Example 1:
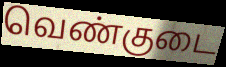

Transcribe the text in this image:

வெண்குடை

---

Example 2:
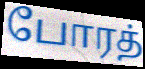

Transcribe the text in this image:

போரத்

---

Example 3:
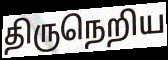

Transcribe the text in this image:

திருநெறிய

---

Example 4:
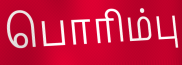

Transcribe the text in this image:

பொரிம்பு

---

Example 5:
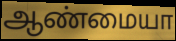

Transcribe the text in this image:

ஆண்மையா